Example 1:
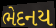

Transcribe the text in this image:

ભેદનય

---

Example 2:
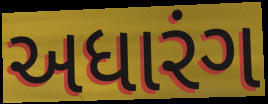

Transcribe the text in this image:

અધારંગ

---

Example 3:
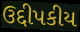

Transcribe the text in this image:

ઉદ્દીપકીય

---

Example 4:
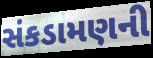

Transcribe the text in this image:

સંકડામણની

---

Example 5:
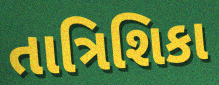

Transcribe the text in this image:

તાત્રિશિકા